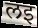
लइ